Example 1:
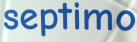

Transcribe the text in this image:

septimo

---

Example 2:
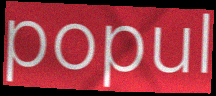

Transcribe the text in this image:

popul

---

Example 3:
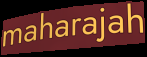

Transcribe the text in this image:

maharajah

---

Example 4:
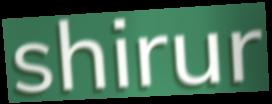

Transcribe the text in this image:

shirur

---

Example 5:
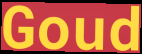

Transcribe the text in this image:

Goud